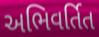
અભિવર્તિત